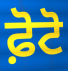
ਫ਼ੋਟੋ